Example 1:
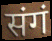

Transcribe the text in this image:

संगं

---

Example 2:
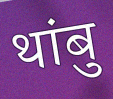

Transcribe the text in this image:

थांबु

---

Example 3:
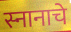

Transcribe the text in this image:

स्नानाचे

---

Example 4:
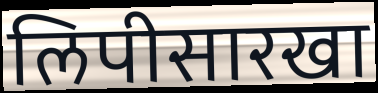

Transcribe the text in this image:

लिपीसारखा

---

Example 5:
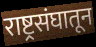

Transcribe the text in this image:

राष्ट्रसंघातून